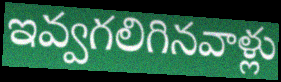
ఇవ్వగలిగినవాళ్లు